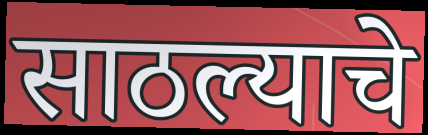
साठल्याचे